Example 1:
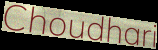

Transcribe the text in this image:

Choudhari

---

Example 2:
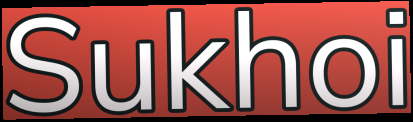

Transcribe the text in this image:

Sukhoi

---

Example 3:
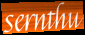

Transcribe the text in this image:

sernthu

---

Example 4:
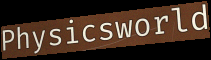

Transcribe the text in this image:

Physicsworld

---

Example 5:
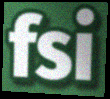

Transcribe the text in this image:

fsi